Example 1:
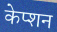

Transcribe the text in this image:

केप्शन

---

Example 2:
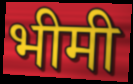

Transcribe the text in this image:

भीमी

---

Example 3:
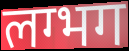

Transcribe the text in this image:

लग्भग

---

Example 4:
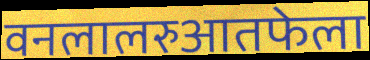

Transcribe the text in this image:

वनलालरुआतफेला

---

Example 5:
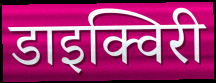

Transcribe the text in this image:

डाइक्विरी